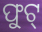
ଫୁଟ୍